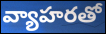
వ్యాహరతో